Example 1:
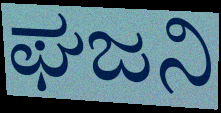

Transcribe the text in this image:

ಘಜನಿ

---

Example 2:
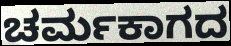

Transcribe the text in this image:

ಚರ್ಮಕಾಗದ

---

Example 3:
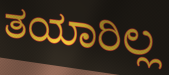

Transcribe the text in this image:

ತಯಾರಿಲ್ಲ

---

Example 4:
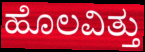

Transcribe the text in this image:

ಹೊಲವಿತ್ತು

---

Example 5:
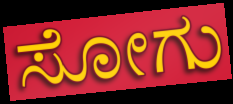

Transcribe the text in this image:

ಸೋಗು